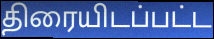
திரையிடப்பட்ட